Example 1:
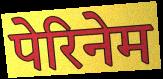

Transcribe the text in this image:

पेरिनेम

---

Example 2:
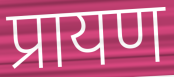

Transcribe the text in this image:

प्रायण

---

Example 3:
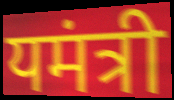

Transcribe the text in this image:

यमंत्री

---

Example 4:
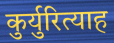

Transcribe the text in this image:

कुर्युरित्याह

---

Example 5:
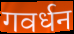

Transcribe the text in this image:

गवर्धन